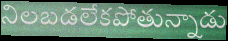
నిలబడలేకపోతున్నాడు